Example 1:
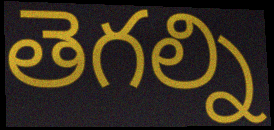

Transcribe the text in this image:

తెగల్ని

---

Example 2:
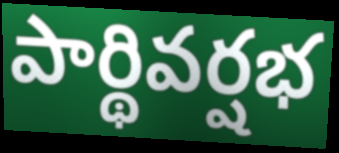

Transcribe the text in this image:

పార్థివర్షభ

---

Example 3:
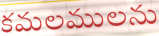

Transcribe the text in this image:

కమలములను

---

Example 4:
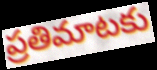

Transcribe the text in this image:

ప్రతిమాటకు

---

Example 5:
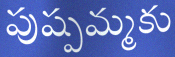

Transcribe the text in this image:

పుష్పమ్మకు